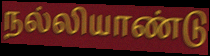
நல்லியாண்டு